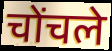
चोंचले